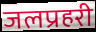
जलप्रहरी